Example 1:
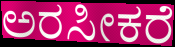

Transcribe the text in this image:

ಅರಸೀಕರೆ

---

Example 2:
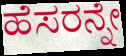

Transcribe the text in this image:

ಹೆಸರನ್ನೇ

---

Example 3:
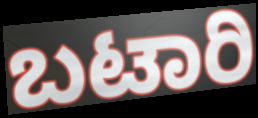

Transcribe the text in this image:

ಬಟಾರಿ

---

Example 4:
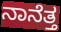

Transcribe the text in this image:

ನಾನೆತ್ತ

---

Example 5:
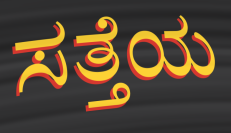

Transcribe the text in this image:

ಸತ್ತೆಯ